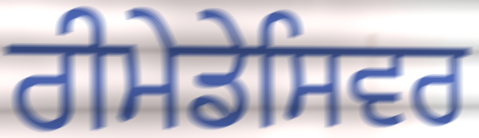
ਰੀਮੇਡੇਸਿਵਰ